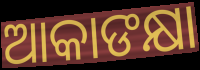
ଆକାଙକ୍ଷା